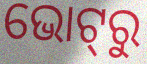
ଭୋଟ୍‌ରୁ